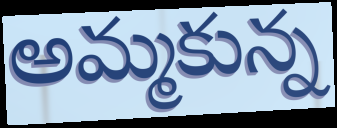
అమ్మకున్న